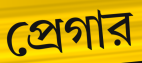
প্রেগার